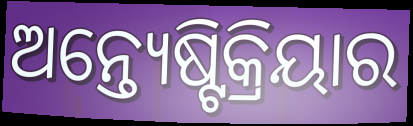
ଅନ୍ତ୍ୟେଷ୍ଟିକ୍ରିୟାର